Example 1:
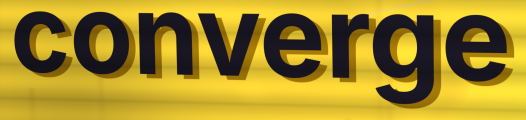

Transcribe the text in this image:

converge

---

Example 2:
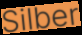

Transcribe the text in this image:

Silber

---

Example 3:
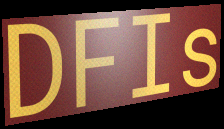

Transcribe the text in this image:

DFIs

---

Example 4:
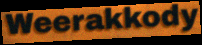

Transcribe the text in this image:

Weerakkody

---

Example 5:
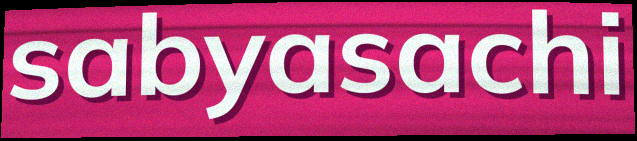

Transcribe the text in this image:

sabyasachi